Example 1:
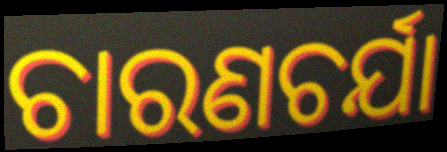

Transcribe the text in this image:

ଚାରଣଚର୍ଯା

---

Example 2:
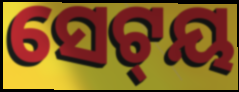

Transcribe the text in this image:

ସେଟ୍‌ୟ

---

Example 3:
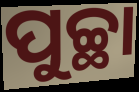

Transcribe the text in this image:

ପୁଚ୍ଛା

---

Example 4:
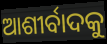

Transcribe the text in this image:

ଆଶୀର୍ବାଦକୁ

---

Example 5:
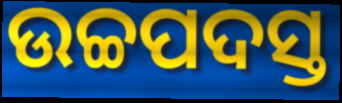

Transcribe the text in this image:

ଉଚ୍ଚପଦସ୍ତ